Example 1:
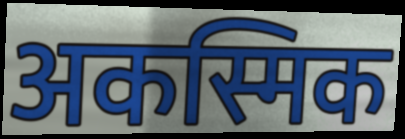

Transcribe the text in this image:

अकस्मिक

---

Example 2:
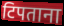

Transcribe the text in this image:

टिपताना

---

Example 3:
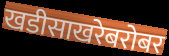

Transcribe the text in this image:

खडीसाखरेबरोबर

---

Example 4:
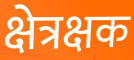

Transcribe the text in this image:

क्षेत्रक्षक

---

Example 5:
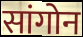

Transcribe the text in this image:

सांगोन